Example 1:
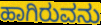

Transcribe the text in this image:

ಹಾಗಿರುವನು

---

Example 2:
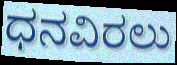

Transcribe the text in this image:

ಧನವಿರಲು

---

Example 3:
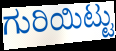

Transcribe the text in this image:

ಗುರಿಯಿಟ್ಟು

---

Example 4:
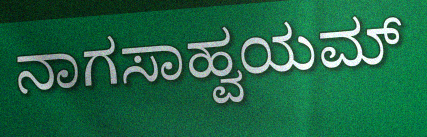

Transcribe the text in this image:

ನಾಗಸಾಹ್ವಯಮ್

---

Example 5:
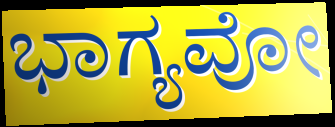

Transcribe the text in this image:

ಭಾಗ್ಯವೋ